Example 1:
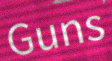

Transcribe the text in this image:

Guns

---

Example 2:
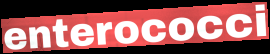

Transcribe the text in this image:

enterococci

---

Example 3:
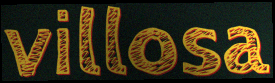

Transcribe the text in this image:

villosa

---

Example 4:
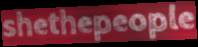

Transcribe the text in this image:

shethepeople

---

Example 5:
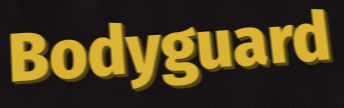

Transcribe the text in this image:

Bodyguard